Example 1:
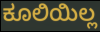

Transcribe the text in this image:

ಕೂಲಿಯಿಲ್ಲ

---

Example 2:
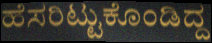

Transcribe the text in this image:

ಹೆಸರಿಟ್ಟುಕೊಂಡಿದ್ದ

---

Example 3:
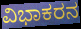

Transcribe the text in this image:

ವಿಭಾಕರನ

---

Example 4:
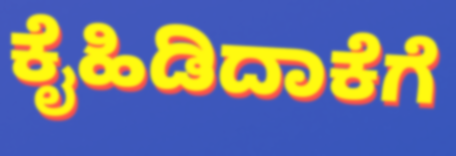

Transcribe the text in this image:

ಕೈಹಿಡಿದಾಕೆಗೆ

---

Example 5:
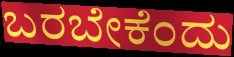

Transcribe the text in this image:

ಬರಬೇಕೆಂದು